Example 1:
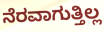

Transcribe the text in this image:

ನೆರವಾಗುತ್ತಿಲ್ಲ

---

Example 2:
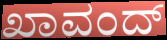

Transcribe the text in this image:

ಖಾವಂದ್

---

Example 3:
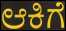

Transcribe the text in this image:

ಆಕಿಗೆ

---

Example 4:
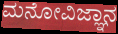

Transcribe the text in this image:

ಮನೋವಿಜ್ಞಾನ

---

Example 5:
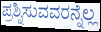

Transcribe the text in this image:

ಪ್ರಶ್ನಿಸುವವರನ್ನೆಲ್ಲ